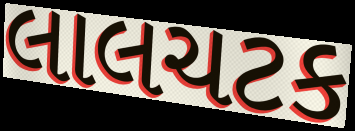
લાલચટક